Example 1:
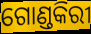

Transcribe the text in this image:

ଗୋଣ୍ଡକିରୀ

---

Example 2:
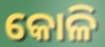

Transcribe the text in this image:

କୋଳି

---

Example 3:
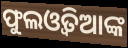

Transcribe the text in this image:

ଫୁଲଓ୍ୱତିଆଙ୍କ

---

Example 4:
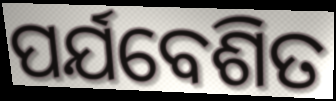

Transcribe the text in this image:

ପର୍ଯବେଶିତ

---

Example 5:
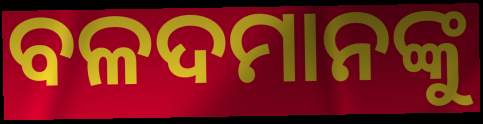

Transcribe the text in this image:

ବଳଦମାନଙ୍କୁ